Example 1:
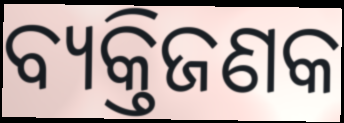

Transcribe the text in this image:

ବ୍ୟକ୍ତିଜଣକ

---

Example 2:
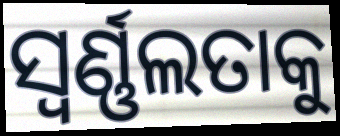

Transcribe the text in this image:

ସ୍ଵର୍ଣ୍ଣଲତାକୁ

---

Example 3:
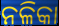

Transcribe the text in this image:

ନଳିକା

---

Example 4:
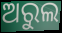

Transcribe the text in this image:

ଅରୁଲ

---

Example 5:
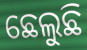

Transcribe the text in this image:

ଛେଲୁଛି